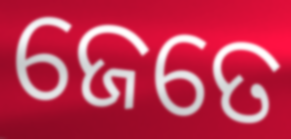
ଜେତେ